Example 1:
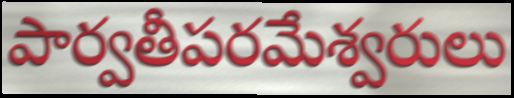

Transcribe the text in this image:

పార్వతీపరమేశ్వరులు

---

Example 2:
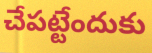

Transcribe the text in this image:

చేపట్టేందుకు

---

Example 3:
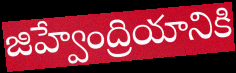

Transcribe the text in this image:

జిహ్వేంద్రియానికి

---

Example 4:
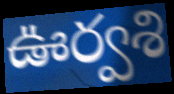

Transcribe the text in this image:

ఊర్వశి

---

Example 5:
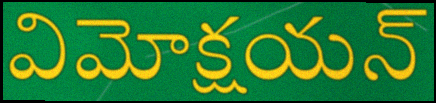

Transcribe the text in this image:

విమోక్షయన్